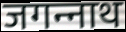
जगन्नाथ